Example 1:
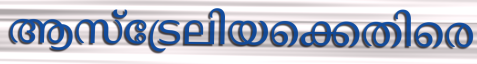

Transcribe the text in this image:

ആസ്ട്രേലിയക്കെതിരെ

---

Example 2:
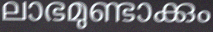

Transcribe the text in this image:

ലാഭമുണ്ടാക്കും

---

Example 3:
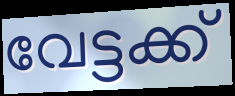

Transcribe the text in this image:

വേട്ടക്ക്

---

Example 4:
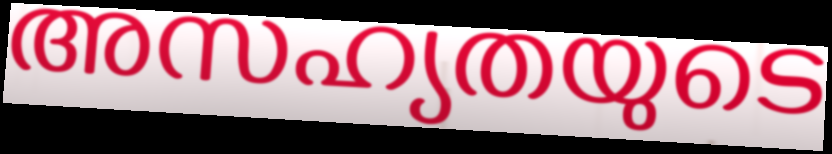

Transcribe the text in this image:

അസഹ്യതയുടെ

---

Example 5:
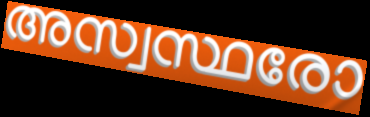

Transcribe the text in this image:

അസ്വസ്ഥരോ